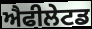
ਐਫੀਲੇਟਡ